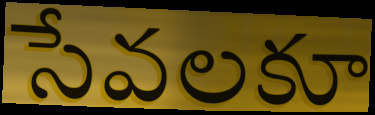
సేవలకూ